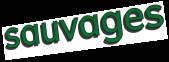
sauvages